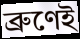
ব্ৰুণেই